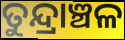
ତୁନ୍ଦ୍ରାଞ୍ଚଳ